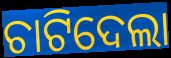
ଚାଟିଦେଲା